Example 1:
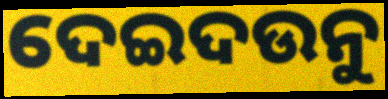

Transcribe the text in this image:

ଦେଇଦଉନୁ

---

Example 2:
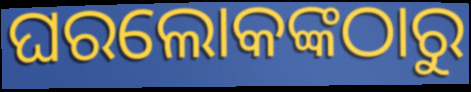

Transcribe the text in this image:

ଘରଲୋକଙ୍କଠାରୁ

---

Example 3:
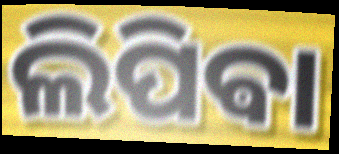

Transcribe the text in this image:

ଲିପିଵା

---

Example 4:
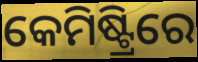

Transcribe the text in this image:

କେମିଷ୍ଟ୍ରିରେ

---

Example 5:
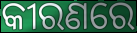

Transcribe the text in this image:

କୀରଣରେ